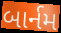
બાર્નમ